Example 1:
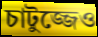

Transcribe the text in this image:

চাটুজ্জেও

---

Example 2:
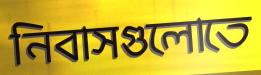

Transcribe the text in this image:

নিবাসগুলোতে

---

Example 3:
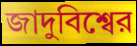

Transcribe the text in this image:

জাদুবিশ্বের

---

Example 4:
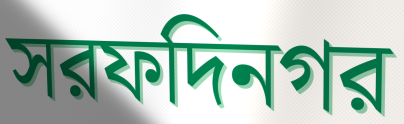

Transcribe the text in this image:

সরফদিনগর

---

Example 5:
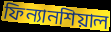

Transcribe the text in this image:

ফিন্যানশিয়াল